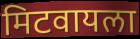
मिटवायला